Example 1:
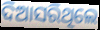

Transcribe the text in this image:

ଦିଆସରିଥିଲେ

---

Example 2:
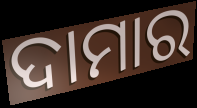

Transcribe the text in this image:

ଦାମାର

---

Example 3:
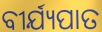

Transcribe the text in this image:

ବୀର୍ଯ୍ୟପାତ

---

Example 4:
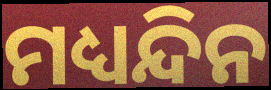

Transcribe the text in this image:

ମଧ୍ୟନ୍ଦିନ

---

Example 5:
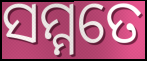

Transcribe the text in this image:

ସମ୍ମତେ